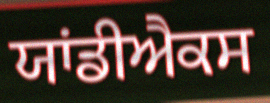
ਯਾਂਡੀਐਕਸ